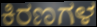
ಕಿರಣಗಳ